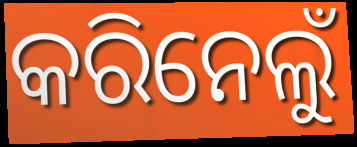
କରିନେଲୁଁ